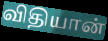
விதியான்